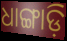
ଧାଙ୍ଗାଡ଼ି